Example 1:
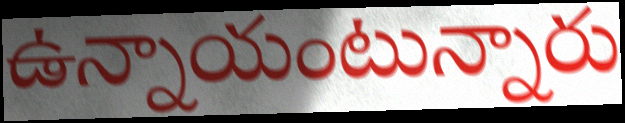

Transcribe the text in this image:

ఉన్నాయంటున్నారు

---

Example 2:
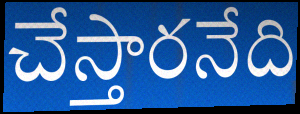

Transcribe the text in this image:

చేస్తారనేది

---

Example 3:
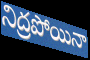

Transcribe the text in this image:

నిద్రపోయినా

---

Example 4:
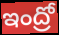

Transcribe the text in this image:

ఇంద్రో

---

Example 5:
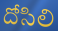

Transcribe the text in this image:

దోసిలి